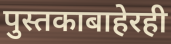
पुस्तकाबाहेरही